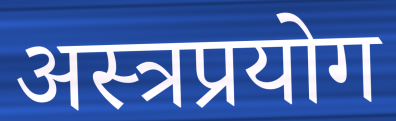
अस्त्रप्रयोग